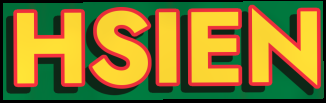
HSIEN